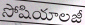
సోషియాలజీ